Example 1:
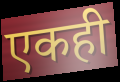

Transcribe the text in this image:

एकही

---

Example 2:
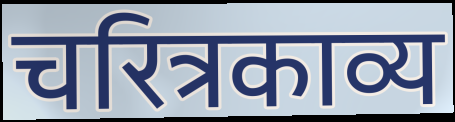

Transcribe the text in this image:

चरित्रकाव्य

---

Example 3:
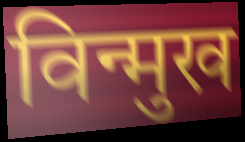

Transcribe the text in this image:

विन्मुख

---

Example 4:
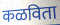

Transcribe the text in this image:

कळविता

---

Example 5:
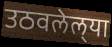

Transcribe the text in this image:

उठवलेल्या